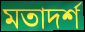
মতাদৰ্শ